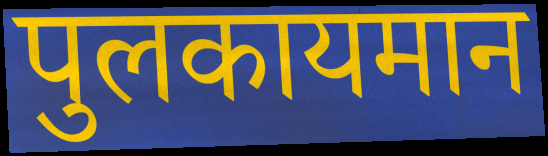
पुलकायमान